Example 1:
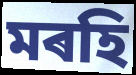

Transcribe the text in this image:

মৰহি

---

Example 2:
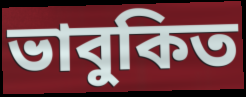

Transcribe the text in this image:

ভাবুকিত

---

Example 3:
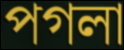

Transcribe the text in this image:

পগলা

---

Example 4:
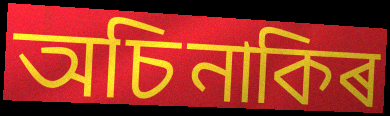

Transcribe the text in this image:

অচিনাকিৰ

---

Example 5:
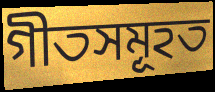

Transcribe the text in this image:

গীতসমূহত